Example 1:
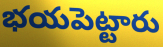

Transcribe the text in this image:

భయపెట్టారు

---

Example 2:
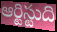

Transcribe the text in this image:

ఆర్టిస్టుది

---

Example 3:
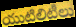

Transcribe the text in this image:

యుటిలిటీలు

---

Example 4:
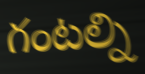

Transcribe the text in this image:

గంటల్ని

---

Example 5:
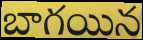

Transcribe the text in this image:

బాగయిన